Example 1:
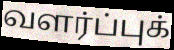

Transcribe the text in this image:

வளர்ப்புக்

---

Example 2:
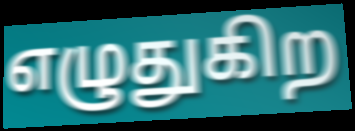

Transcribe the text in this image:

எழுதுகிற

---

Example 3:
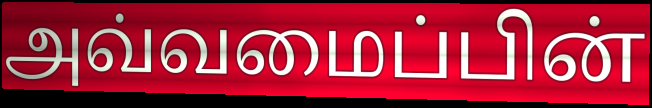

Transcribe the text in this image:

அவ்வமைப்பின்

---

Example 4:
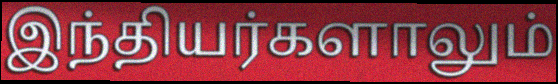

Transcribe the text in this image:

இந்தியர்களாலும்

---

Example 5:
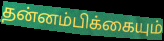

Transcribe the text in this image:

தன்னம்பிக்கையும்